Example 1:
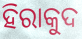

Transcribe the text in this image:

ହିରାକୁଦ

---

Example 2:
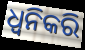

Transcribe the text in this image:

ଧ୍ୱନିକରି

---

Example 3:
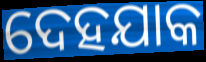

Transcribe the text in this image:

ଦେହଯାକ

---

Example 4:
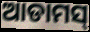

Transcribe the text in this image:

ଆଡାମସ୍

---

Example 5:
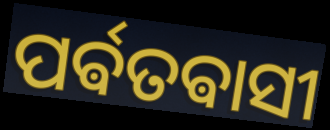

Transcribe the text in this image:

ପର୍ଵତଵାସୀ